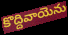
కొద్దివాయెను